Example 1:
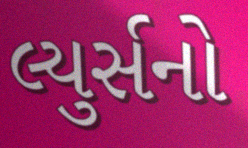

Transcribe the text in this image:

લ્યુર્સનો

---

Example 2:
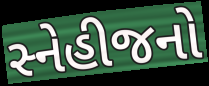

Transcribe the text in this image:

સ્નેહીજનો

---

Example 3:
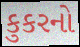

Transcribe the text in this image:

કુકરનો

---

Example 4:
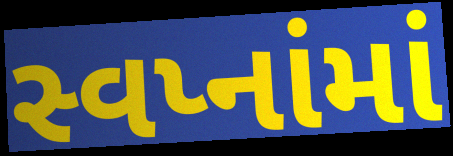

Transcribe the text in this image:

સ્વપ્નાંમાં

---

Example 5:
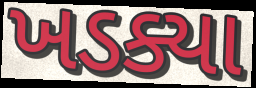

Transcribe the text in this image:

ખડક્યા